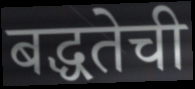
बद्धतेची